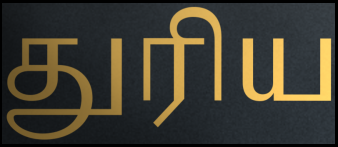
துரிய